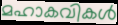
മഹാകവികൾ